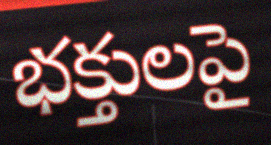
భక్తులపై